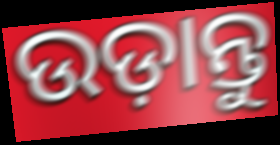
ଉଡ଼ାନ୍ତୁ